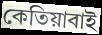
কেতিয়াবাই